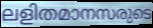
ലളിതമാനസരുടെ